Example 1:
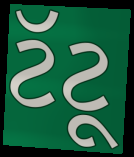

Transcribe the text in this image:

ટૅટૂ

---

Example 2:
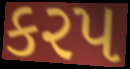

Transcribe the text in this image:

કરપ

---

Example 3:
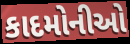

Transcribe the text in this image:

કાદમોનીઓ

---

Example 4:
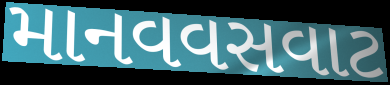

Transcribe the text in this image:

માનવવસવાટ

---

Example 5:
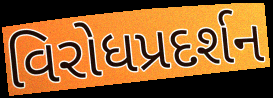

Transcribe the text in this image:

વિરોધપ્રદર્શન